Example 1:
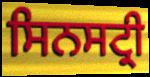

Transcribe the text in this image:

ਸਿਨਸਟ੍ਰੀ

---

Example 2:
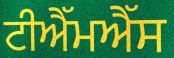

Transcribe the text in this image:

ਟੀਐੱਮਐੱਸ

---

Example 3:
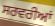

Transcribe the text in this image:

ਸਰਵਰੀਆਂ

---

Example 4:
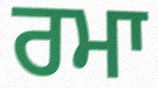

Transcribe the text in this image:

ਰਮਾ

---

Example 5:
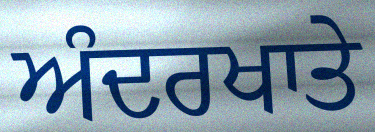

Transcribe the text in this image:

ਅੰਦਰਖਾਤੇ